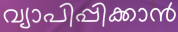
വ്യാപിപ്പിക്കാൻ